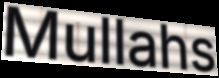
Mullahs